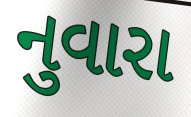
નુવારા